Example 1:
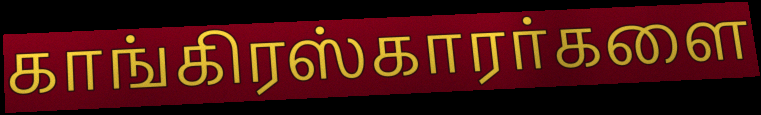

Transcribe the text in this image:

காங்கிரஸ்காரர்களை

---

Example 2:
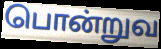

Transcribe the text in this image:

பொன்றுவ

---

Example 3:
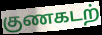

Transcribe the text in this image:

குணகடற்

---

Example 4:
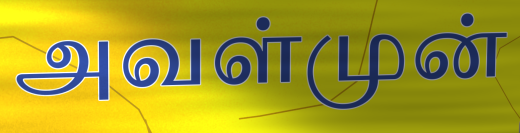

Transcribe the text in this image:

அவள்முன்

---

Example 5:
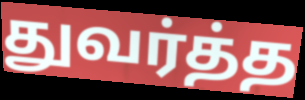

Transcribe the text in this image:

துவர்த்த